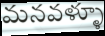
మనవళ్ళూ